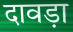
दावड़ा